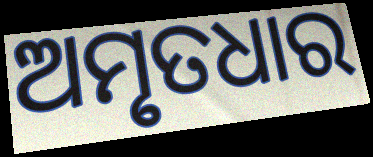
ଅମୃତଧାର